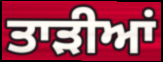
ਤਾੜੀਆਂ